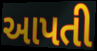
આપતી